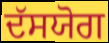
ਦੱਸਯੋਗ